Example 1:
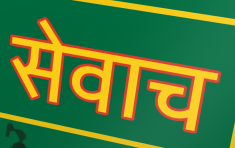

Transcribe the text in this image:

सेवाच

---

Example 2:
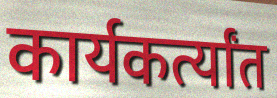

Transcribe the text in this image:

कार्यकर्त्यांत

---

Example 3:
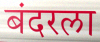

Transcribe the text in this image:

बंदरला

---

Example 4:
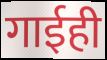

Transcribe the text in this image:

गाईही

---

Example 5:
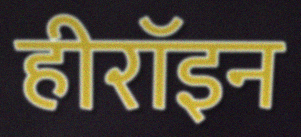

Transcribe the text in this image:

हीरॉइन